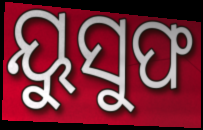
ୟୁସୁଫ